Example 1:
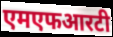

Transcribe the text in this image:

एमएफआरटी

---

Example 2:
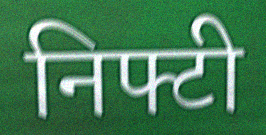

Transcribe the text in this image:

निफ्टी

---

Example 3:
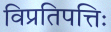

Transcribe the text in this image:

विप्रतिपत्तिः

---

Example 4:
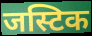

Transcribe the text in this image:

जस्टिक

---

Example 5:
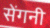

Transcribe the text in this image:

सेंगनी